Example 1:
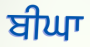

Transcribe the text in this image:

ਬੀਘਾ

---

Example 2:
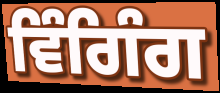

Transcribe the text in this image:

ਵਿੰਗਿੰਗ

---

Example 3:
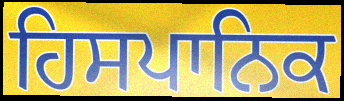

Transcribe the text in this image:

ਹਿਸਪਾਨਿਕ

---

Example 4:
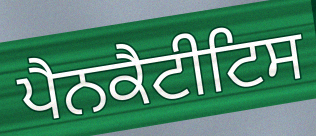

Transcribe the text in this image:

ਪੈਨਕੈਟੀਟਿਸ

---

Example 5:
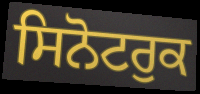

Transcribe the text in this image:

ਸਿਨੋਟਰੁਕ